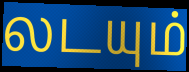
லடயும்